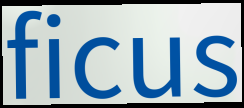
ficus